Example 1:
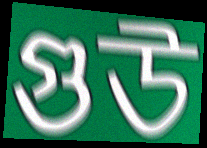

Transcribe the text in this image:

গুউ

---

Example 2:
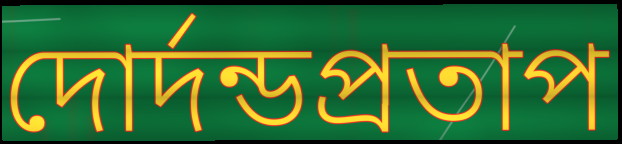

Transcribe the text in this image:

দোর্দন্ডপ্রতাপ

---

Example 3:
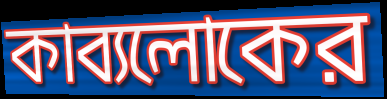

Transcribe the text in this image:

কাব্যলোকের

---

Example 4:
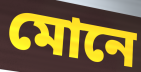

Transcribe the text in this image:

মোনে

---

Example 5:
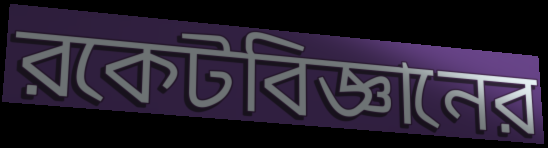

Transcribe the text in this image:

রকেটবিজ্ঞানের